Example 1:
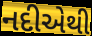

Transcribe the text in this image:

નદીએથી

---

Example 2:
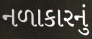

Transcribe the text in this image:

નળાકારનું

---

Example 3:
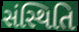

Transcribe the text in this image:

સંસ્થિતિ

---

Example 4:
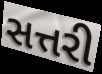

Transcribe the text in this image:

સત્તરી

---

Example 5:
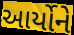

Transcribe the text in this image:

આર્યોને